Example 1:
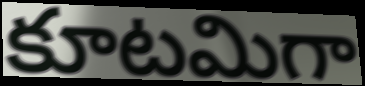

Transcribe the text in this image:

కూటమిగా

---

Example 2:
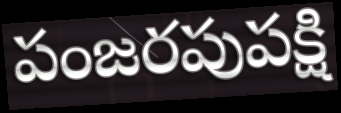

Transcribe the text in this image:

పంజరపుపక్షి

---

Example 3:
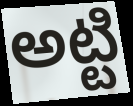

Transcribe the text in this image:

అట్టి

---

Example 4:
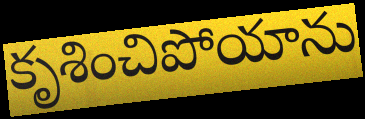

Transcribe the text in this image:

కృశించిపోయాను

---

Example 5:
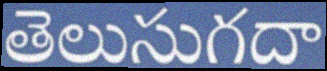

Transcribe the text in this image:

తెలుసుగదా